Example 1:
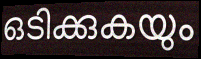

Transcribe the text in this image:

ഒടിക്കുകയും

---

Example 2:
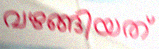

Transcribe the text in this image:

വഴങ്ങിയത്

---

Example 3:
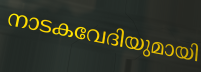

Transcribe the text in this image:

നാടകവേദിയുമായി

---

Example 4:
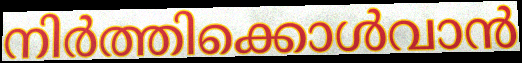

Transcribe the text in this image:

നിർത്തിക്കൊൾവാൻ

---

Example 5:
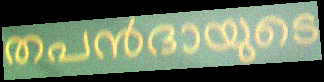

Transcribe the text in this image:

തപൻദായുടെ